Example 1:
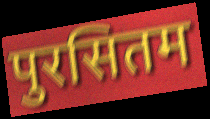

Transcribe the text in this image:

पुरसितम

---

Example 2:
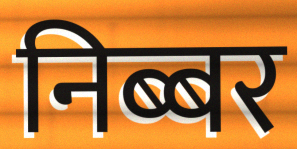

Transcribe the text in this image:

निब्बर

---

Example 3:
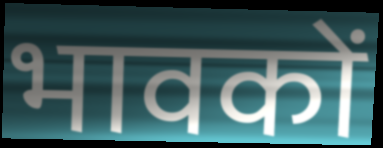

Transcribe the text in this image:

भावकों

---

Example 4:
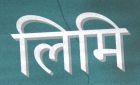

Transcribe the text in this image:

लिमि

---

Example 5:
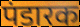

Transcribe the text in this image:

पंडारक